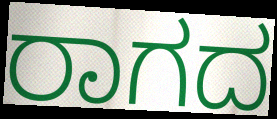
ರಾಗದ